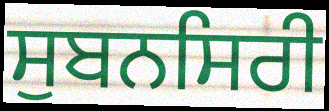
ਸੁਬਨਸਿਰੀ